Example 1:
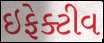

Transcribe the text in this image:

ઇફેક્ટીવ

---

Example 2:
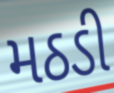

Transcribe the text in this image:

મઠડી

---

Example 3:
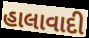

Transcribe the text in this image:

હાલાવાદી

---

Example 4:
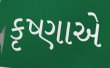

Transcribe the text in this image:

કૃષ્ણાએ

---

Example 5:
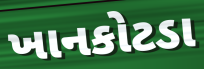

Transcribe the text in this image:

ખાનકોટડા